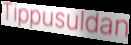
Tippusuldan